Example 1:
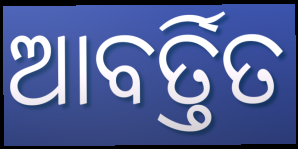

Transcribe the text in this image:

ଆବର୍ତ୍ତିତ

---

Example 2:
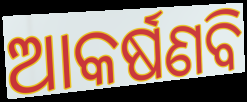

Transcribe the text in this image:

ଆକର୍ଷଣବି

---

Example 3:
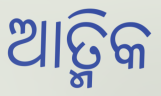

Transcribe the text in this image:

ଆତ୍ମିକ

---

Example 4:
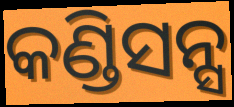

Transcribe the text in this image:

କଣ୍ଡିସନ୍ସ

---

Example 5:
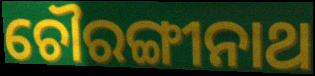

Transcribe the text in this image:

ଚୌରଙ୍ଗୀନାଥ